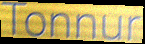
Tonnur